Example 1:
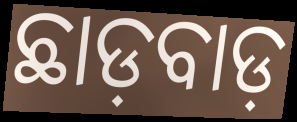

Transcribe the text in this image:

ଛାଡ଼ବାଡ଼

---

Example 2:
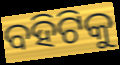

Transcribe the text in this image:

ବହିଟିକୁ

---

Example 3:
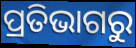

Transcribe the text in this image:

ପ୍ରତିଭାଗରୁ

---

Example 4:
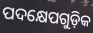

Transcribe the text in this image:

ପଦକ୍ଷେପଗୁଡ଼ିକ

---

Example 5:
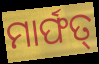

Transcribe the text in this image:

ମାର୍ଫତ୍